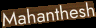
Mahanthesh